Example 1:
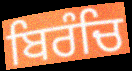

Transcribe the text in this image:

ਬਿਰੰਚਿ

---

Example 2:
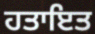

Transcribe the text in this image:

ਹਤਾਇਤ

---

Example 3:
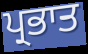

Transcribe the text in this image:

ਪ੍ਰਭਾਤ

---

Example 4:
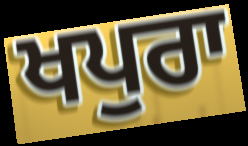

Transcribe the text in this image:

ਖਪੁਰਾ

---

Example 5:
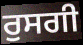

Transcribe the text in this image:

ਰੁਸਗੀ